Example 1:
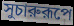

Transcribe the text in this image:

সুচারুরূপে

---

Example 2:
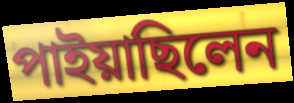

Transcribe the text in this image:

পাইয়াছিলেন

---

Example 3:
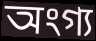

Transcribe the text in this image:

অংগ্য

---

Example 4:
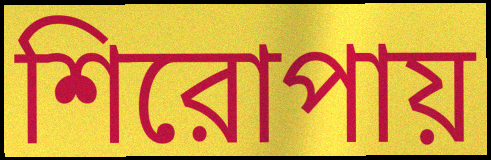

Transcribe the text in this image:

শিরোপায়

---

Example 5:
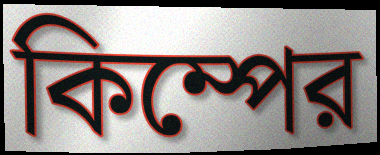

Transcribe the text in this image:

কিম্পের